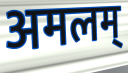
अमलम्